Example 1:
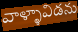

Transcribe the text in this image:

వాళ్ళావిడను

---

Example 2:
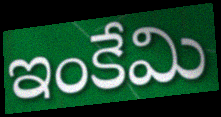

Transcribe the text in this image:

ఇంకేమి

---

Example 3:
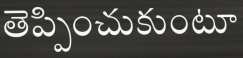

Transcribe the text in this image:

తెప్పించుకుంటూ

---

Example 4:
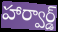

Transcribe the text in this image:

హార్వార్డ్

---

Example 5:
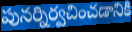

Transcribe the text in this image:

పునర్నిర్వచించడానికి